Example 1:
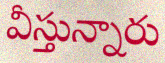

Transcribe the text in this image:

వీస్తున్నారు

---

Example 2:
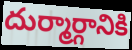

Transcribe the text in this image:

దుర్మార్గానికి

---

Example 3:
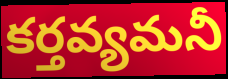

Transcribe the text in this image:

కర్తవ్యమనీ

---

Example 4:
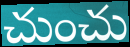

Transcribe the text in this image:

చుంచు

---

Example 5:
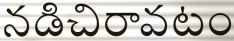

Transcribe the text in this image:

నడిచిరావటం